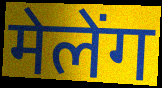
मेलेंग